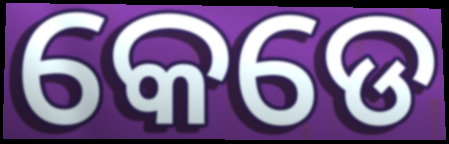
କେଡେ